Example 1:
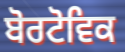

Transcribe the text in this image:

ਬੋਰਟੋਵਿਕ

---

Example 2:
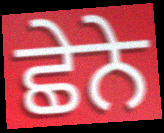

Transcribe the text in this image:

ਛੇਨੇ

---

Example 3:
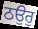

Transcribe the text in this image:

ਠਉਰੁ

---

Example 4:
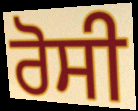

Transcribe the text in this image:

ਰੋਸੀ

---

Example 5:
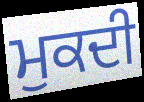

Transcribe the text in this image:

ਮੁਕਦੀ